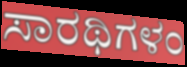
ಸಾರಥಿಗಳಂ